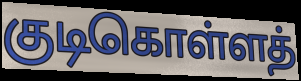
குடிகொள்ளத்